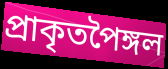
প্ৰাকৃতপৈঙ্গল